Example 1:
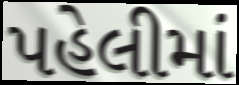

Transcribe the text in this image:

પહેલીમાં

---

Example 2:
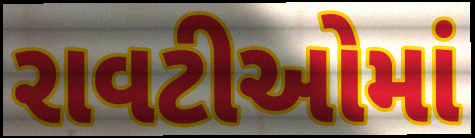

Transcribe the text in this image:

રાવટીઓમાં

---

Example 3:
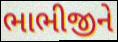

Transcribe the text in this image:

ભાભીજીને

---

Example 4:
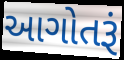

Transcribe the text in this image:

આગોતરૂં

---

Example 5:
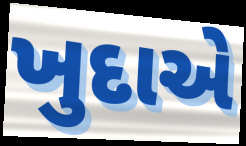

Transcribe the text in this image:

ખુદાએ